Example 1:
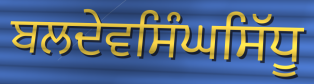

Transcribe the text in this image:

ਬਲਦੇਵਸਿੰਘਸਿੱਧੂ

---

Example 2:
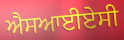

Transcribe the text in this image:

ਐਸਆਈਏਸੀ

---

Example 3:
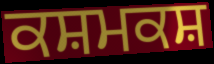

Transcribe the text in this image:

ਕਸ਼ਮਕਸ਼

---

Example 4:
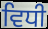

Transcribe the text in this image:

ਵਿਧੀ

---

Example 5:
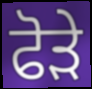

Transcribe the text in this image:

ਫੋੜੇ